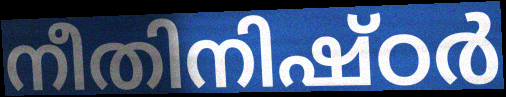
നീതിനിഷ്ഠർ